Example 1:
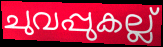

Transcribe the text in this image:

ചുവപ്പുകല്ല്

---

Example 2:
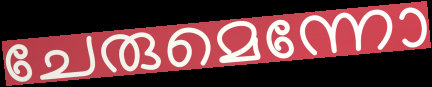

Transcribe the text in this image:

ചേരുമെന്നോ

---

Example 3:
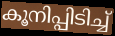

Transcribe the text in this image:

കൂനിപ്പിടിച്ച്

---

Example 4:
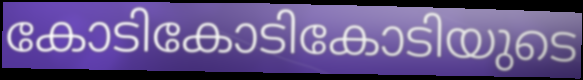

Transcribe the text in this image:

കോടികോടികോടിയുടെ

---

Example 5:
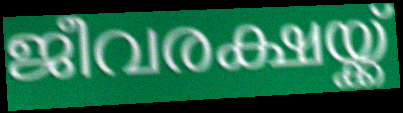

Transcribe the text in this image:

ജീവരക്ഷയ്ക്ക്